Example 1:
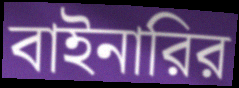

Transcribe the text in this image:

বাইনারির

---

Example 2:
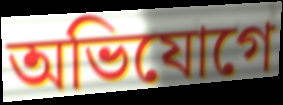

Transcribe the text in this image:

অভিযোগে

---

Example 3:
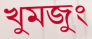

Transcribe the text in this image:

খুমজুং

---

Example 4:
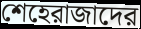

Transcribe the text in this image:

শেহেরাজাদের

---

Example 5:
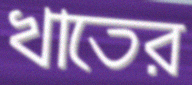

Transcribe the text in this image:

খাতের